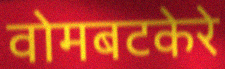
वोमबटकेरे